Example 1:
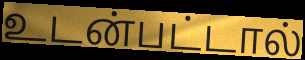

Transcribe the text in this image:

உடன்பட்டால்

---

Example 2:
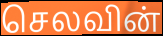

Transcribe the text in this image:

செலவின்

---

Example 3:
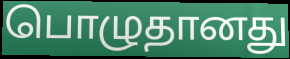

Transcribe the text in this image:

பொழுதானது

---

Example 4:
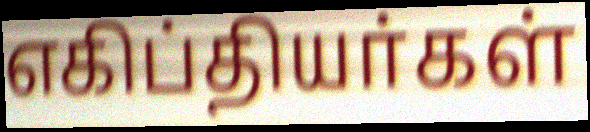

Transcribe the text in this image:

எகிப்தியர்கள்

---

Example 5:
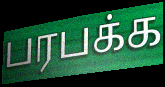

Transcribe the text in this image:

பரபக்க